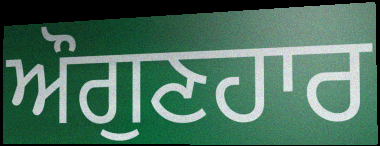
ਔਗੁਣਹਾਰ